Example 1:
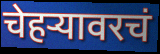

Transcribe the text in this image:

चेहर्‍यावरचं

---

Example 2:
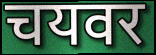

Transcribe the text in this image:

चयवर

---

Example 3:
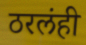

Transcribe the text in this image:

ठरलंही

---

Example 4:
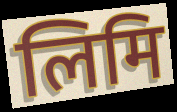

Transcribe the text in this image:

लिमि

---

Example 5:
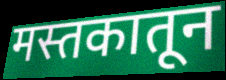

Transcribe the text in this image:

मस्तकातून